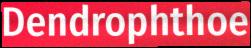
Dendrophthoe